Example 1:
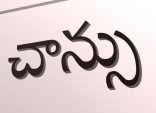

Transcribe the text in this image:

చాన్సు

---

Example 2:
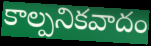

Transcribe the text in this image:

కాల్పనికవాదం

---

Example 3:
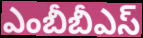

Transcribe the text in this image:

ఎంబీబీఎస్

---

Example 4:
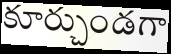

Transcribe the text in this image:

కూర్చుండగా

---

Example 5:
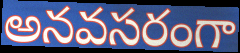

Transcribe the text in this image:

అనవసరంగా